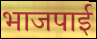
भाजपाई